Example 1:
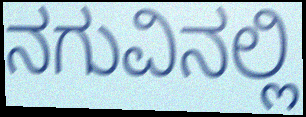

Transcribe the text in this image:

ನಗುವಿನಲ್ಲಿ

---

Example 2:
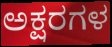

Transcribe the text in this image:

ಅಕ್ಷರಗಳ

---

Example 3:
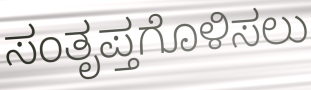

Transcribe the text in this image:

ಸಂತೃಪ್ತಗೊಳಿಸಲು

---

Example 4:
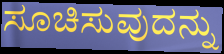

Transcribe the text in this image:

ಸೂಚಿಸುವುದನ್ನು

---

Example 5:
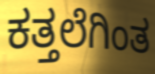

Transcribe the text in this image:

ಕತ್ತಲೆಗಿಂತ